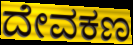
ದೇವಕಣ